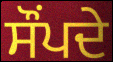
ਸੌਂਪਦੇ